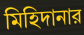
মিহিদানার